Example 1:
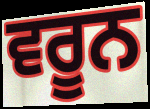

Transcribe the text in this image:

ਵਰੂਨ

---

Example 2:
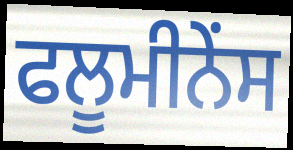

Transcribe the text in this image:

ਫਲੂਮੀਨੇਂਸ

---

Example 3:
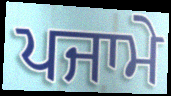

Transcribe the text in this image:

ਪਜਾਮੇ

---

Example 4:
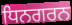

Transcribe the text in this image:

ਧਿਨਗਰਨ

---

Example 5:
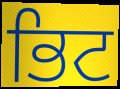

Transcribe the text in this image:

ਭਿਟ